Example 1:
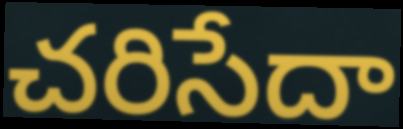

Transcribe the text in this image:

చరిసేదా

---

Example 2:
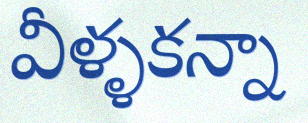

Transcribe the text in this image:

వీళ్ళకన్నా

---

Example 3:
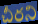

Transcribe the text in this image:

చీరని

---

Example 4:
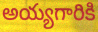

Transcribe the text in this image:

అయ్యగారికి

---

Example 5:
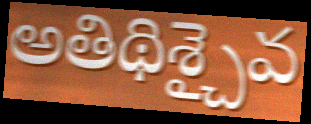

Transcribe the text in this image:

అతిథిశ్చైవ